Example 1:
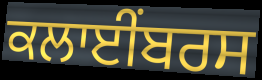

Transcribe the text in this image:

ਕਲਾਈਂਬਰਸ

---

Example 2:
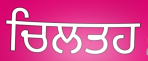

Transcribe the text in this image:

ਚਿਲਤਹ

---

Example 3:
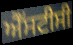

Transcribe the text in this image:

ਐੱਸਟੀਸੀ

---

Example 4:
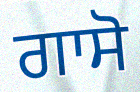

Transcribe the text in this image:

ਗਾਸੋ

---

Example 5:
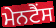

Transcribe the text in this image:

ਮੇਨਟੈਂਸ